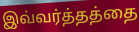
இவ்வர்த்தத்தை